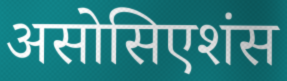
असोसिएशंस